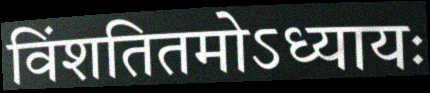
विंशतितमोऽध्यायः